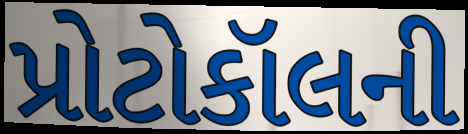
પ્રોટોકૉલની